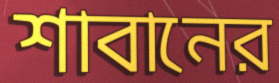
শাবানের